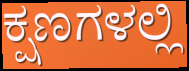
ಕ್ಷಣಗಳಲ್ಲಿ